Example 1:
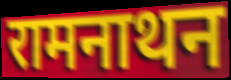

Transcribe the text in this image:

रामनाथन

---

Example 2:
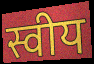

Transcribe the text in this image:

स्वीय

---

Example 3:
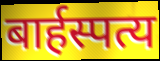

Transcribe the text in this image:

बार्हस्पत्य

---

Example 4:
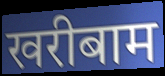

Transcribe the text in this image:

खरीबाम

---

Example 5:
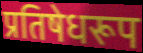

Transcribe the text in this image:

प्रतिषेधरूप